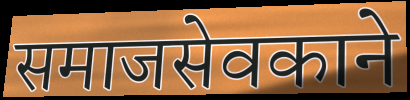
समाजसेवकाने